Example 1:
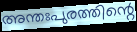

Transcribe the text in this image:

അന്തഃപുരത്തിന്റെ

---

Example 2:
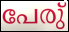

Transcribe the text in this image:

പേരു്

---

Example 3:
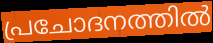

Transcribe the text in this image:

പ്രചോദനത്തിൽ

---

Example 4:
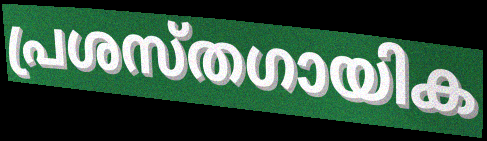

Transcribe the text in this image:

പ്രശസ്തഗായിക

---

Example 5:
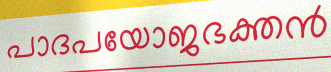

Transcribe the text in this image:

പാദപയോജഭക്തൻ